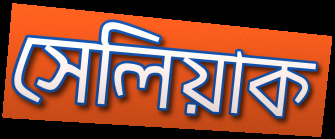
সেলিয়াক